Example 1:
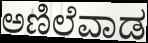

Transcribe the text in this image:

ಅಣಿಲೆವಾಡ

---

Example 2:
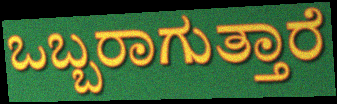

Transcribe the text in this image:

ಒಬ್ಬರಾಗುತ್ತಾರೆ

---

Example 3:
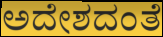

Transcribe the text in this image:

ಅದೇಶದಂತೆ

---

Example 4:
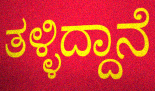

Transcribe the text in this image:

ತಳ್ಳಿದ್ದಾನೆ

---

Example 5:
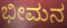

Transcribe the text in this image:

ಭೀಮನ